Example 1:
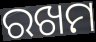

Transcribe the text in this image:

ରଖମ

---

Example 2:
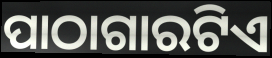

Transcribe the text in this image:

ପାଠାଗାରଟିଏ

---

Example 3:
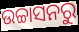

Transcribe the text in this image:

ଉଚ୍ଚାସନରୁ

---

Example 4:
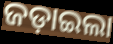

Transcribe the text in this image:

ଜଡ଼ାଇଲା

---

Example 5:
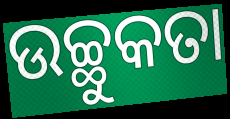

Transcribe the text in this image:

ଉଚ୍ଛୁକତା